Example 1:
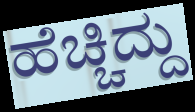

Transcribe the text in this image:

ಹೆಚ್ಚಿದ್ದು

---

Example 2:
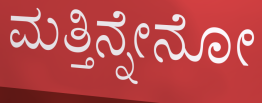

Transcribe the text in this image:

ಮತ್ತಿನ್ನೇನೋ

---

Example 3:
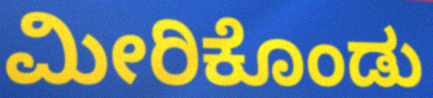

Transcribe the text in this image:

ಮೀರಿಕೊಂಡು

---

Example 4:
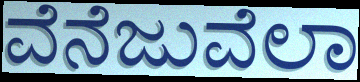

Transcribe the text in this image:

ವೆನೆಜುವೆಲಾ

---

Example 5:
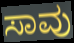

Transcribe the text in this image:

ಸಾವು